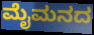
ಮೈಮನದ